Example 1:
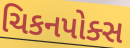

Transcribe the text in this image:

ચિકનપોક્સ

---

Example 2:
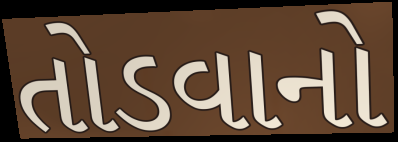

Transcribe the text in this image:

તોડવાનો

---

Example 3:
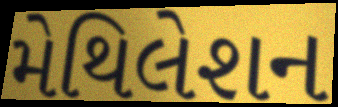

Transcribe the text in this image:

મેથિલેશન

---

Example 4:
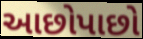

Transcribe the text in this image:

આછોપાછો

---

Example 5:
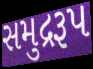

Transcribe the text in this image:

સમુદ્રરૂપ